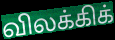
விலக்கிக்